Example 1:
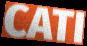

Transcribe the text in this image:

CATI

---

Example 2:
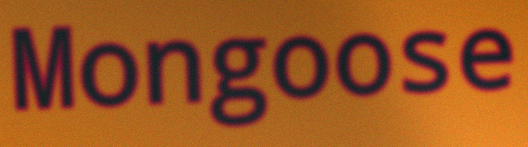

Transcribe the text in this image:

Mongoose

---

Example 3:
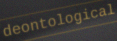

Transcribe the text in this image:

deontological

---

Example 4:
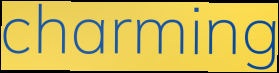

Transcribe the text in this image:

charming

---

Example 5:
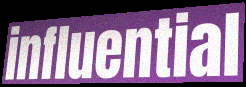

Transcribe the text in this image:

influential